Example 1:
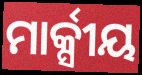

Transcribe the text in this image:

ମାର୍କ୍ସୀୟ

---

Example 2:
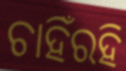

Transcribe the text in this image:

ଚାହିଁରହି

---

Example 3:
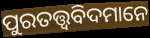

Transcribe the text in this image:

ପୁରତତ୍ତ୍ୱବିଦମାନେ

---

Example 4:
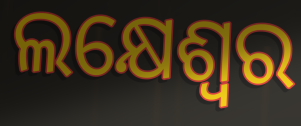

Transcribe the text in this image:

ଲକ୍ଷେଶ୍ଵର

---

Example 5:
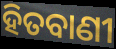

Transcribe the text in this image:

ହିତବାଣୀ